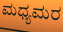
ಮಧ್ಯಮರ